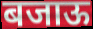
बजाऊ